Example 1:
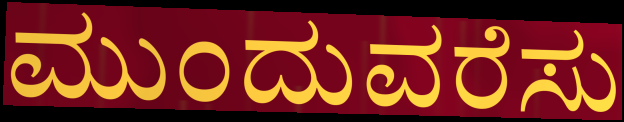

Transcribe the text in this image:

ಮುಂದುವರೆಸು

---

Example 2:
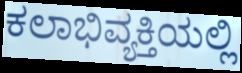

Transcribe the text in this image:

ಕಲಾಭಿವ್ಯಕ್ತಿಯಲ್ಲಿ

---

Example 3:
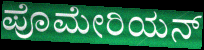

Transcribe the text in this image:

ಪೊಮೇರಿಯನ್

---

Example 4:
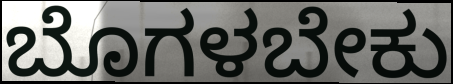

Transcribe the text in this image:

ಬೊಗಳಬೇಕು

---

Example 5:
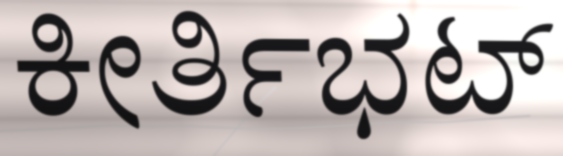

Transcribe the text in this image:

ಕೀರ್ತಿಭಟ್